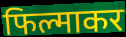
फिल्माकर